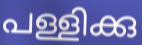
പള്ളിക്കു